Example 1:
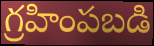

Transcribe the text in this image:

గ్రహింపబడి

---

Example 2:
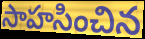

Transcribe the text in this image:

సాహసించిన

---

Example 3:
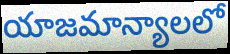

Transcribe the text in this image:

యాజమాన్యాలలో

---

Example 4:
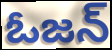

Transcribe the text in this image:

ఓజన్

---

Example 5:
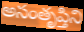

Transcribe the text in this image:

అసంతృప్తిని